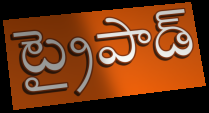
ట్రైపాడ్